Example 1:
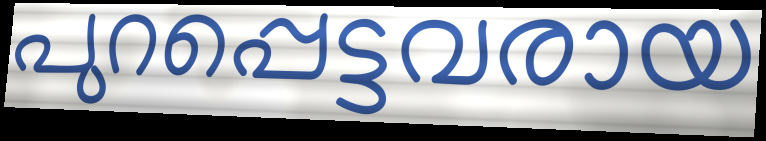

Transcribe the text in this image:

പുറപ്പെട്ടവരായ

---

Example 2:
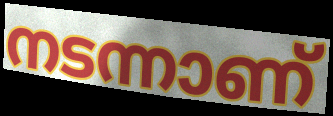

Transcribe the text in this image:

നടന്നാണ്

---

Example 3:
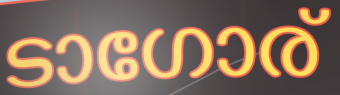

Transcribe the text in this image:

ടാഗോര്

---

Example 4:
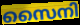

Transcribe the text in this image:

സൈനി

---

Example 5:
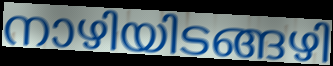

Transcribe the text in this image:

നാഴിയിടങ്ങഴി